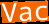
Vac